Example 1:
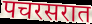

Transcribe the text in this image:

पचरसरात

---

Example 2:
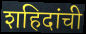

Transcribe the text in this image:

शहिदांची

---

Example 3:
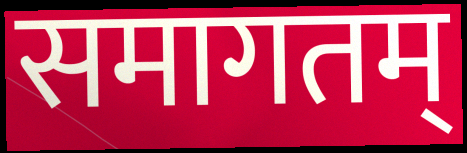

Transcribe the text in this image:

समागतम्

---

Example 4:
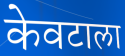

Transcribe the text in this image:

केवटाला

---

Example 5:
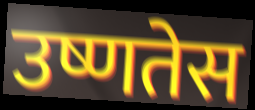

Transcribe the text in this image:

उष्णतेस